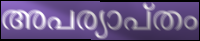
അപര്യാപ്തം